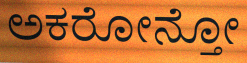
ಅಕರೋನ್ತೋ